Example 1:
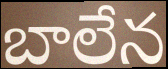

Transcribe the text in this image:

బాలేన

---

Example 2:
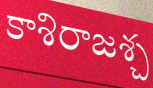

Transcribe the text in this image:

కాశిరాజశ్చ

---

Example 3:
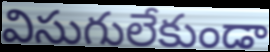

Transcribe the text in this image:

విసుగులేకుండా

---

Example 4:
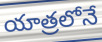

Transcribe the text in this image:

యాత్రలోనే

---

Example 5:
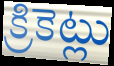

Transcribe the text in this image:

క్రికెట్లు